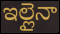
ఇల్లైనా